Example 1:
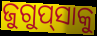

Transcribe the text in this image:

ଜୁଗୁପ୍‍ସାକୁ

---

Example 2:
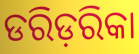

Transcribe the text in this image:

ଡରିଡ଼ରିକା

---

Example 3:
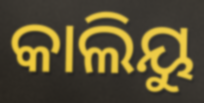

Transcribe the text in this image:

କାଲିୟୁ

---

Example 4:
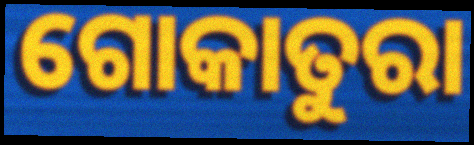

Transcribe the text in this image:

ଗୋକାତୁରା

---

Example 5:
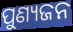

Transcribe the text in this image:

ପୁଣ୍ୟଜନ